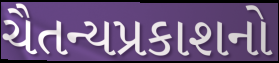
ચૈતન્યપ્રકાશનો